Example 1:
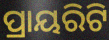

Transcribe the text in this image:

ପ୍ରାୟରିଟି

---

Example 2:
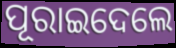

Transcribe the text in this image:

ପୂରାଇଦେଲେ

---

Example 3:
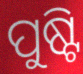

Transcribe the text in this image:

ପୁଷ୍ଟି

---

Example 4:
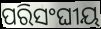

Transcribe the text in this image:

ପରିସଂଘୀୟ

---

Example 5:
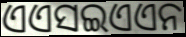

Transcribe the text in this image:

ଏଏସଇଏଏନ